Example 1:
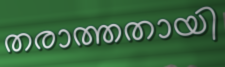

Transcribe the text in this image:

തരാത്തതായി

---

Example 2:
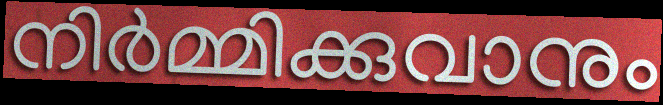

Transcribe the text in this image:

നിർമ്മിക്കുവാനും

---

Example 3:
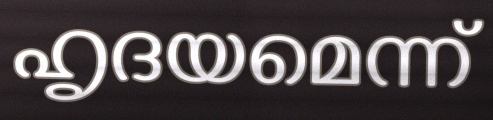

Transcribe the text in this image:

ഹൃദയമെന്ന്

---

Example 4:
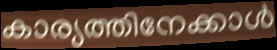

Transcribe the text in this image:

കാര്യത്തിനേക്കാൾ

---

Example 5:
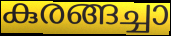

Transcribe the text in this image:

കുരങ്ങച്ചാ